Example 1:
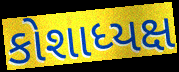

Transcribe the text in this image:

કોશાધ્યક્ષ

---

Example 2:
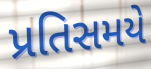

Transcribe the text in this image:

પ્રતિસમયે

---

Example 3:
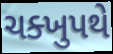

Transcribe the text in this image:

ચક્ખુપથે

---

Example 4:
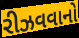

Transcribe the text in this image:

રીઝવવાનો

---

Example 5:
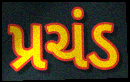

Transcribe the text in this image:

પ્રચંડ